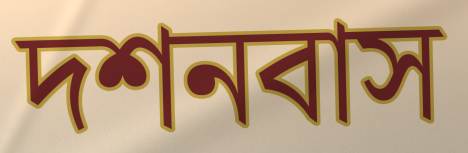
দশনবাস